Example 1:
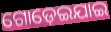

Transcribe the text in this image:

ଗୋଡ଼େଇଯାଇ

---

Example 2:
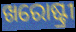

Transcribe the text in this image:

ଖରୋଷ୍ଟ୍ରୀ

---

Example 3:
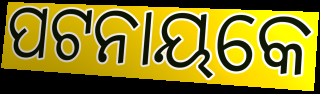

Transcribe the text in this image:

ପଟନାୟକେ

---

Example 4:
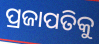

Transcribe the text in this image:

ପ୍ରଜାପତିକୁ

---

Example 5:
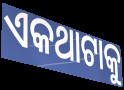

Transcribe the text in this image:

ଏକଥାଟାକୁ